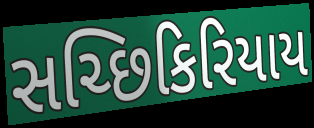
સચ્છિકિરિયાય